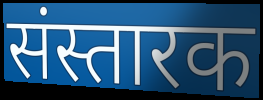
संस्तारक